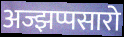
अज्झप्पसारो